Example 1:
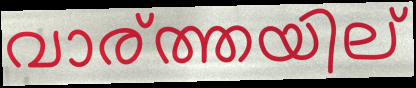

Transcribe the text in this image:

വാര്ത്തയില്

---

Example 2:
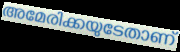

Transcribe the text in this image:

അമേരിക്കയുടേതാണ്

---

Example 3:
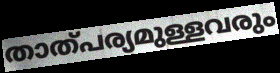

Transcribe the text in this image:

താത്പര്യമുള്ളവരും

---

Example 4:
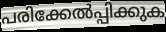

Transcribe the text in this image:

പരിക്കേൽപ്പിക്കുക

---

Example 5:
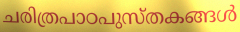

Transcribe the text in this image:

ചരിത്രപാഠപുസ്തകങ്ങൾ